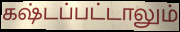
கஷ்டப்பட்டாலும்